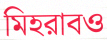
মিহরাবও